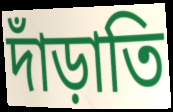
দাঁড়াতি